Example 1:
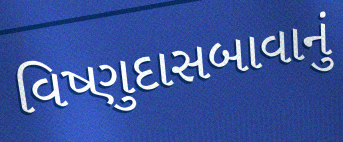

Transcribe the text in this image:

વિષ્ણુદાસબાવાનું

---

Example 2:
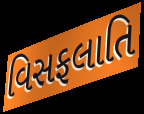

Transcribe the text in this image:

વિસફલાતિ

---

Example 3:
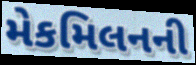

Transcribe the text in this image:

મેકમિલનની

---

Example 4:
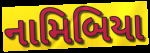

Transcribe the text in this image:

નામિબિયા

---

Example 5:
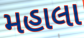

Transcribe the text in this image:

મહાલા